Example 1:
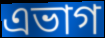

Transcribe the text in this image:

এভাগ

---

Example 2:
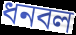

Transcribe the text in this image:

ধনবল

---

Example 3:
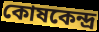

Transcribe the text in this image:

কোষকেন্দ্ৰ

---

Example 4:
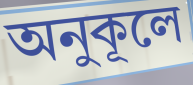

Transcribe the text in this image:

অনুকূলে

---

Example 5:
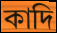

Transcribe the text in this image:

কাদি